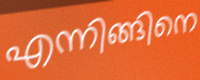
എന്നിങ്ങിനെ